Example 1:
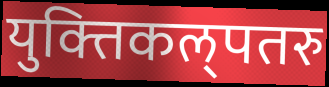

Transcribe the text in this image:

युक्तिकल्पतरु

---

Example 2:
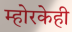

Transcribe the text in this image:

म्होरकेही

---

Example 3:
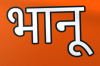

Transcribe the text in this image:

भानू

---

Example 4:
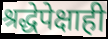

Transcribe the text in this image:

श्रद्धेपेक्षाही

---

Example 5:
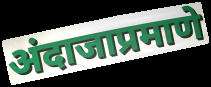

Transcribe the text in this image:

अंदाजाप्रमाणे